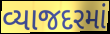
વ્યાજદરમાં